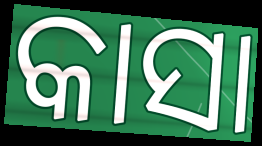
କାସା